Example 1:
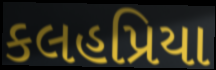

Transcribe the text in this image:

કલહપ્રિયા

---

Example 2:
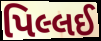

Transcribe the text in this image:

પિલ્લઈ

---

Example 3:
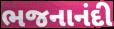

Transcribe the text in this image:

ભજનાનંદી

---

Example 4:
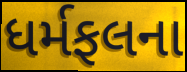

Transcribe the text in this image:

ધર્મફલના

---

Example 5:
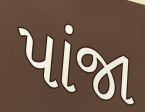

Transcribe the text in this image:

પાંજા